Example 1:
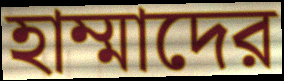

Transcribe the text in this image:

হাম্মাদের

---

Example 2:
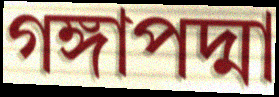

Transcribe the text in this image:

গঙ্গাপদ্মা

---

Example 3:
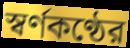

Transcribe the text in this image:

স্বর্ণকণ্ঠের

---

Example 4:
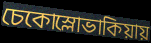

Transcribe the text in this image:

চেকোস্লোভাকিয়ায়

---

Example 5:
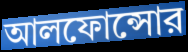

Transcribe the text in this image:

আলফোন্সোর